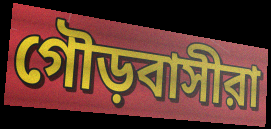
গৌড়বাসীরা